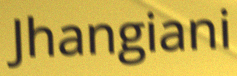
Jhangiani